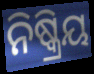
ନିଷ୍କ୍ରିୟ